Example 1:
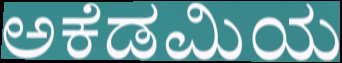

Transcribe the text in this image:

ಅಕೆಡಮಿಯ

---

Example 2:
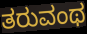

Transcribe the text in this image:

ತರುವಂಥ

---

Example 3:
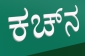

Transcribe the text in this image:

ಕಚ್‌ನ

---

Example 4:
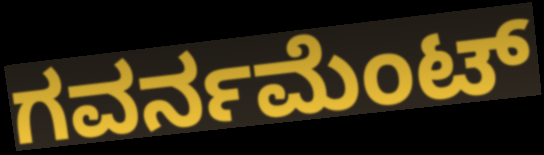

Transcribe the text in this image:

ಗವರ್ನಮೆಂಟ್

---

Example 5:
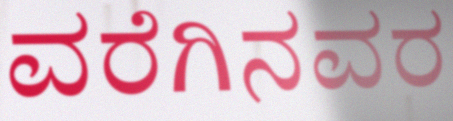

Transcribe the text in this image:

ವರೆಗಿನವರ